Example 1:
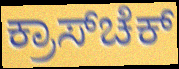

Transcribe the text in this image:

ಕ್ರಾಸ್‌ಚೆಕ್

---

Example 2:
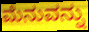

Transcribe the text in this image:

ಮೆನುವನ್ನು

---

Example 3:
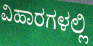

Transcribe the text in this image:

ವಿಹಾರಗಳಲ್ಲಿ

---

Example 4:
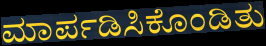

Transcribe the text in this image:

ಮಾರ್ಪಡಿಸಿಕೊಂಡಿತು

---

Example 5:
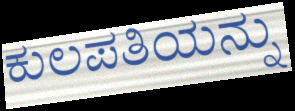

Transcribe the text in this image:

ಕುಲಪತಿಯನ್ನು